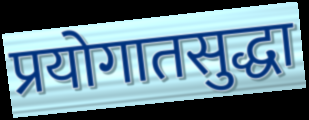
प्रयोगातसुद्धा